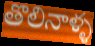
తొలినాళ్ళ